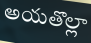
అయతొల్లా